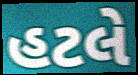
હટલે